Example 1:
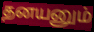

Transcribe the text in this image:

தனயனும்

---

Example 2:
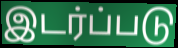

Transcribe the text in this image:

இடர்ப்படு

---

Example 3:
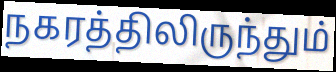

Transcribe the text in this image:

நகரத்திலிருந்தும்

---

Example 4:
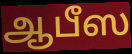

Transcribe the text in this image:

ஆபீஸ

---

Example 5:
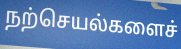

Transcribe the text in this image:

நற்செயல்களைச்